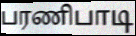
பரணிபாடி